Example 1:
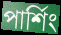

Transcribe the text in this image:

পার্শিং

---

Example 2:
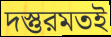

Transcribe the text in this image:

দস্তুরমতই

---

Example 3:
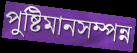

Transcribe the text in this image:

পুষ্টিমানসম্পন্ন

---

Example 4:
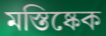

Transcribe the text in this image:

মস্তিষ্কেক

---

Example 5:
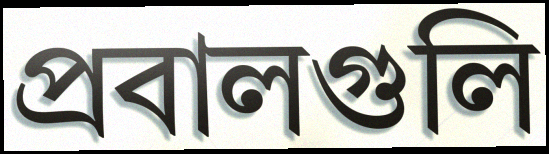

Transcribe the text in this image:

প্রবালগুলি